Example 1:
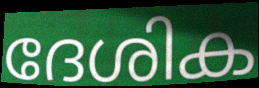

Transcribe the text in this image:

ദേശിക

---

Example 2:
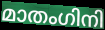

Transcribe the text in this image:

മാതംഗിനി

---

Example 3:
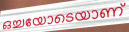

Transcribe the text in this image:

ഒച്ചയോടെയാണ്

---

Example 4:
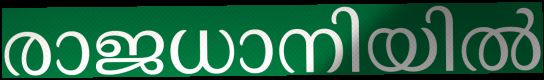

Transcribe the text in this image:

രാജധാനിയിൽ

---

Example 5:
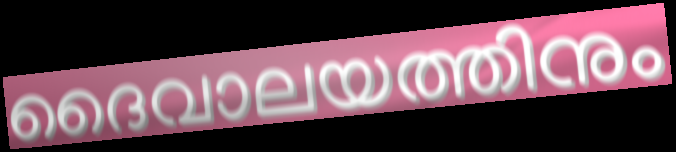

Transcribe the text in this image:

ദൈവാലയത്തിനും